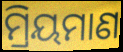
ମ୍ରିୟମାଣ